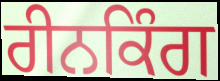
ਰੀਨਕਿੰਗ